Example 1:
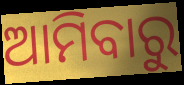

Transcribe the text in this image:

ଆମିବାରୁ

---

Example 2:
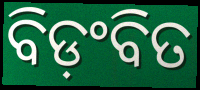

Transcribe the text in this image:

ବିଡ଼ଂବିତ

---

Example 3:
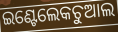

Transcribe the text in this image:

ଇଣ୍ଟେଲେକଚୁଆଲ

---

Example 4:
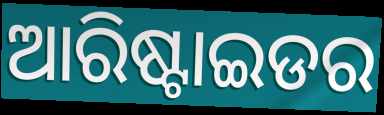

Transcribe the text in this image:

ଆରିଷ୍ଟାଇଡର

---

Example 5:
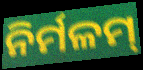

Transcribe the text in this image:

ନିର୍ମଳମ୍